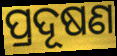
ପ୍ରଦୂଷଣ